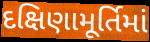
દક્ષિણામૂર્તિમાં